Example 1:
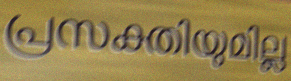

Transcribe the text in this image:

പ്രസക്തിയുമില്ല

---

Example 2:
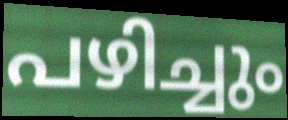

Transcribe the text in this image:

പഴിച്ചും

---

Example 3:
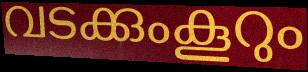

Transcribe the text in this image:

വടക്കുംകൂറും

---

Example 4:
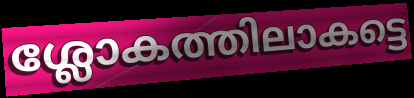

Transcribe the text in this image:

ശ്ലോകത്തിലാകട്ടെ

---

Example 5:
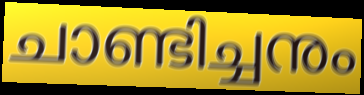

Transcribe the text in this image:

ചാണ്ടിച്ചനും